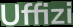
Uffizi